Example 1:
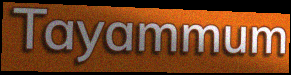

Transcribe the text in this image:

Tayammum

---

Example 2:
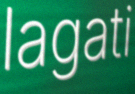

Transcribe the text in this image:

lagati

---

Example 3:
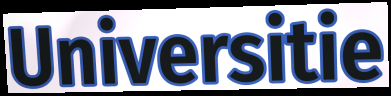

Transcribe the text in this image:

Universitie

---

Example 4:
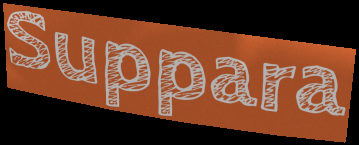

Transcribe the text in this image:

Suppara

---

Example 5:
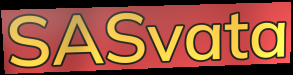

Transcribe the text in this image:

SASvata